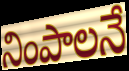
నింపాలనే